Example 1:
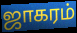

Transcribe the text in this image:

ஜாகரம்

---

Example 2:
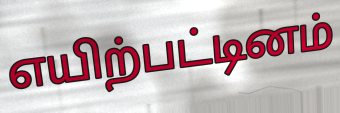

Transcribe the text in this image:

எயிற்பட்டினம்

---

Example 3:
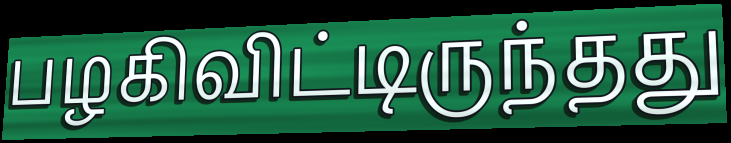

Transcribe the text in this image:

பழகிவிட்டிருந்தது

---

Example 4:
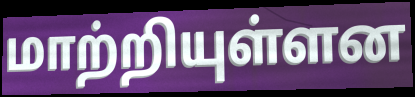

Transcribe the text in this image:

மாற்றியுள்ளன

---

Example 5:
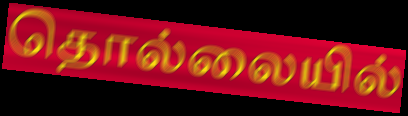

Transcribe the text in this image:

தொல்லையில்